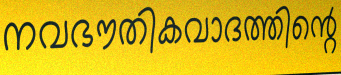
നവഭൗതികവാദത്തിന്റെ